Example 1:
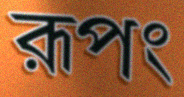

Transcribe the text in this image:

রূপং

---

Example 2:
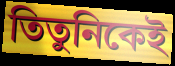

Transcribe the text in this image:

তিতুনিকেই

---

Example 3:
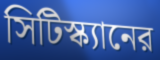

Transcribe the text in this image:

সিটিস্ক্যানের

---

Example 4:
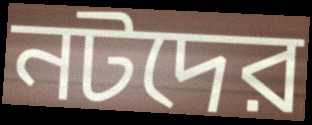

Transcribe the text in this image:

নটদের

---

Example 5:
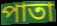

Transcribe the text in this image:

পাতা